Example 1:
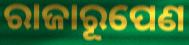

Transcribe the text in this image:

ରାଜାରୂପେଣ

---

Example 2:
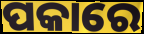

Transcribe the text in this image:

ପକାରେ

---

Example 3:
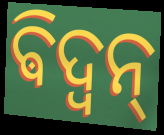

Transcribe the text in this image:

ଵିଦ୍ଵନ୍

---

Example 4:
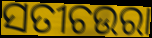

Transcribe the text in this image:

ସତୀଚଉରା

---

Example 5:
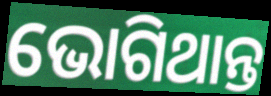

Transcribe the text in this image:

ଭୋଗିଥାନ୍ତ